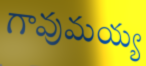
గావుమయ్య